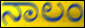
ನಾಲಂ